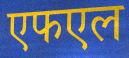
एफएल